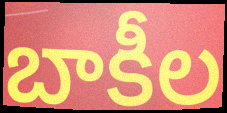
బాకీల